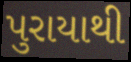
પુરાયાથી